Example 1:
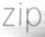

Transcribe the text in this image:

zip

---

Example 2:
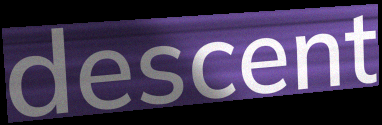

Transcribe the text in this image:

descent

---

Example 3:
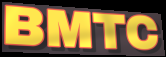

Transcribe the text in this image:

BMTC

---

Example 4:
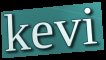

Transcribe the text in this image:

kevi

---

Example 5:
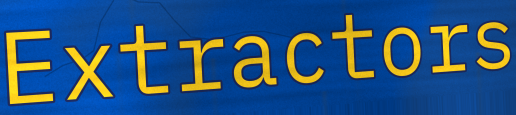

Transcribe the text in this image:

Extractors